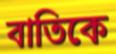
বাতিকে